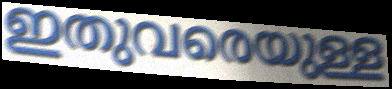
ഇതുവരെയുള്ള